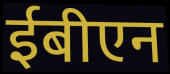
ईबीएन